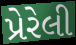
પ્રેરેલી